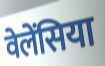
वेलेंसिया